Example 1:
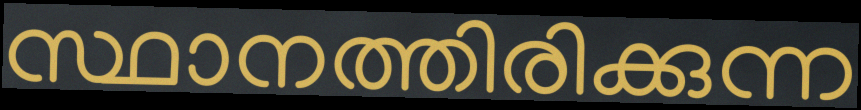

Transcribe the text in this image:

സ്ഥാനത്തിരിക്കുന്ന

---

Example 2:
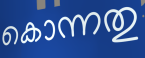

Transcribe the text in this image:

കൊന്നതു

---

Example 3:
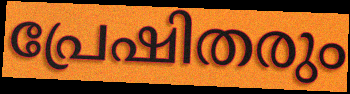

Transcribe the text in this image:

പ്രേഷിതരും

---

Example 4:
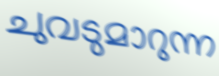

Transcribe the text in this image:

ചുവടുമാറുന്ന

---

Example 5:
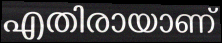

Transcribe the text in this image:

എതിരായാണ്